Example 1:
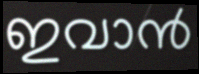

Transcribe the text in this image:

ഇവാൻ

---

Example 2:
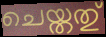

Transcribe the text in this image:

ചെയ്തതു്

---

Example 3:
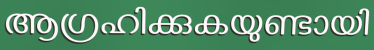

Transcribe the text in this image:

ആഗ്രഹിക്കുകയുണ്ടായി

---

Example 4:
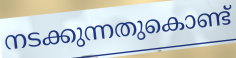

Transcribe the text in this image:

നടക്കുന്നതുകൊണ്ട്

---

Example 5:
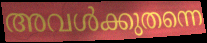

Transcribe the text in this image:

അവൾക്കുതന്നെ